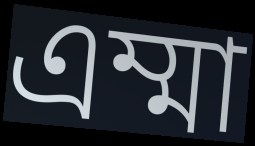
এম্মা